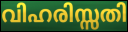
വിഹരിസ്സതി